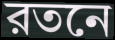
রতনে